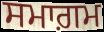
ਸਮਾਗ਼ਮ